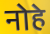
नोहे